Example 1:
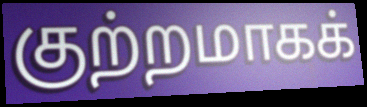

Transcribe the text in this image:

குற்றமாகக்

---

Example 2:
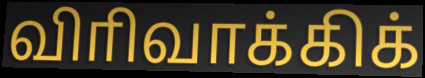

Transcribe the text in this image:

விரிவாக்கிக்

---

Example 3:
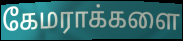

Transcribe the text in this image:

கேமராக்களை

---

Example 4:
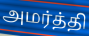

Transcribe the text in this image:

அமர்த்தி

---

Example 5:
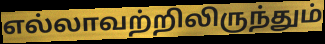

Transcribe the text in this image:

எல்லாவற்றிலிருந்தும்